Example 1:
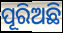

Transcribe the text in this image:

ପୂରିଅଛି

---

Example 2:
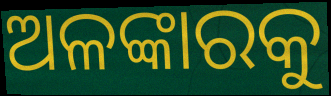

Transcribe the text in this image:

ଅଳଙ୍କାରକୁ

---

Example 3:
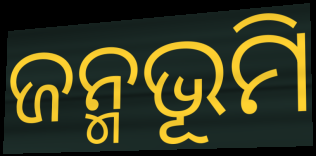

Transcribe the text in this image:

ଜନ୍ମଭୂମି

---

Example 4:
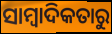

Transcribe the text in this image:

ସାମ୍ବାଦିକତାରୁ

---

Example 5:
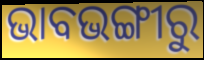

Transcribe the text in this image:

ଭାବଭଙ୍ଗୀରୁ